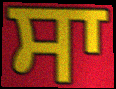
ਸਾ